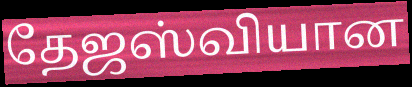
தேஜஸ்வியான